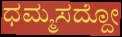
ಧಮ್ಮಸದ್ದೋ